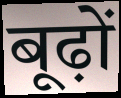
बूढ़ों